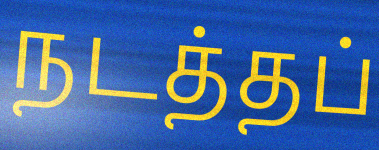
நடத்தப்